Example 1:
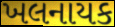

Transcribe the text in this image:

ખલનાયક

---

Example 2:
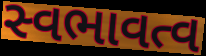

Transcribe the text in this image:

સ્વભાવત્વ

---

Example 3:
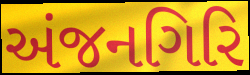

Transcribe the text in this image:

અંજનગિરિ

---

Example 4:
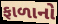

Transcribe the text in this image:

ફાળાનો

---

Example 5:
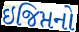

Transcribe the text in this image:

ઇજિપ્તનો